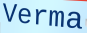
Verma